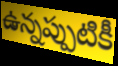
ఉన్నప్పుటికీ